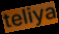
teliya